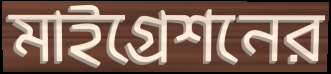
মাইগ্রেশনের